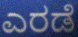
ಎರಡೆ